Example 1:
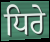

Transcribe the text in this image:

ਧਿਰੇ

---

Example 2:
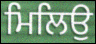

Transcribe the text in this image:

ਮਿਲਿਉ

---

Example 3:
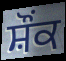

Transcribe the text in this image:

ਸ਼ੌਂਕ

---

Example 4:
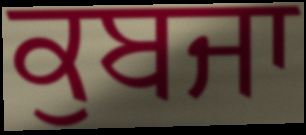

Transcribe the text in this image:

ਕੁਬਜਾ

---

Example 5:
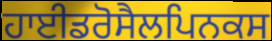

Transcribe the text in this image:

ਹਾਈਡਰੋਸੈਲਪਿਨਕਸ